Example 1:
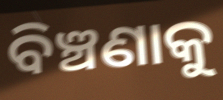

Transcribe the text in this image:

ବିଞ୍ଚଣାକୁ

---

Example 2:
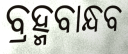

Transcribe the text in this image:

ବ୍ରହ୍ମବାନ୍ଧବ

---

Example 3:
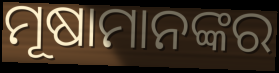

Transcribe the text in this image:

ମୂଷାମାନଙ୍କର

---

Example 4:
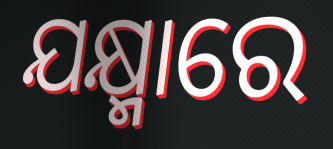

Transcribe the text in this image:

ଯକ୍ଷ୍ମାରେ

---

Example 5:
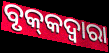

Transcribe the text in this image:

ବୃକ୍‌କଦ୍ଵାରା